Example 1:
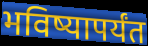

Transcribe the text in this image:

भविष्यापर्यंत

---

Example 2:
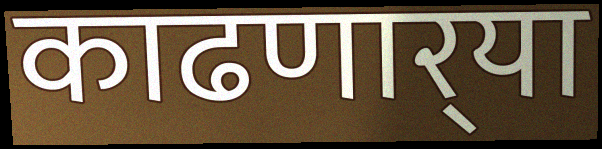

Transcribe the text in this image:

काढणार्‍या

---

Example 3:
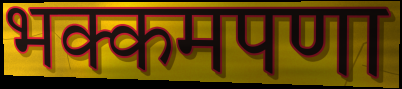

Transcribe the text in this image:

भक्कमपणा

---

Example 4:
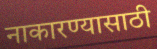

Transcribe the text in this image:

नाकारण्यासाठी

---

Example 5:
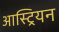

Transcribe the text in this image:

आस्ट्रियन